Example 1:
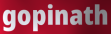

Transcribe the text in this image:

gopinath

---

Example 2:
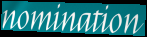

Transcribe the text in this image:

nomination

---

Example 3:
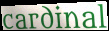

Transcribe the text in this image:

cardinal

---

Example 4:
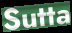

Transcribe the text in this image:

Sutta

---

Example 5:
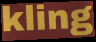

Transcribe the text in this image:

kling